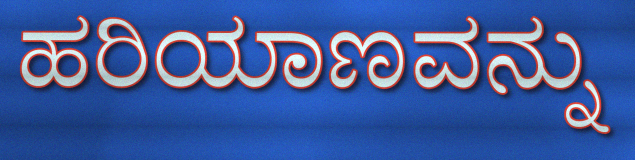
ಹರಿಯಾಣವನ್ನು